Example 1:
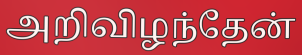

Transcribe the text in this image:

அறிவிழந்தேன்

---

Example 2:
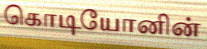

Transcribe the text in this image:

கொடியோனின்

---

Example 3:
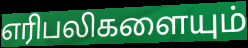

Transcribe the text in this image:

எரிபலிகளையும்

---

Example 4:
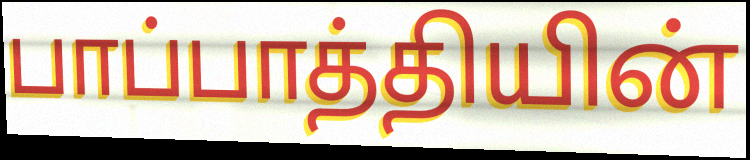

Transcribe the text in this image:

பாப்பாத்தியின்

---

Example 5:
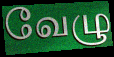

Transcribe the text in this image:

வேழு